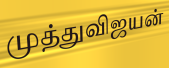
முத்துவிஜயன்